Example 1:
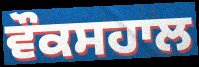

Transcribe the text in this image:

ਵੌਕਸਹਾਲ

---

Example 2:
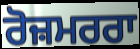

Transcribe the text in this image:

ਰੋਜ਼ਮਰਰਾ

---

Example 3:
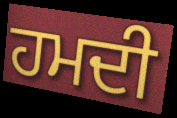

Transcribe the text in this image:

ਹਮਦੀ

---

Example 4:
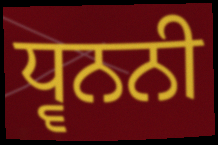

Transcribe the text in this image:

ਧ੍ਵਨਨੀ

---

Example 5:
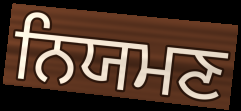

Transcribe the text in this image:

ਨਿਯਮਣ